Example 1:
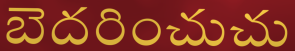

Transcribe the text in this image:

బెదరించుచు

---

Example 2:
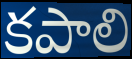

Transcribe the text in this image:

కపాలి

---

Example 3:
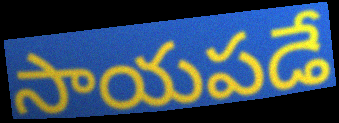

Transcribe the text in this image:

సాయపడే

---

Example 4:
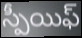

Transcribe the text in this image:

స్పీయిఫ్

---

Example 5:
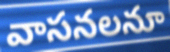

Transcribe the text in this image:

వాసనలనూ